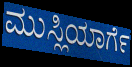
ಮುಸ್ಲಿಯಾರ್ಗೆ